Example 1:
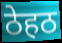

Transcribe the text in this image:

ठेहठ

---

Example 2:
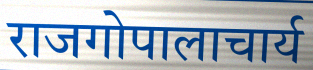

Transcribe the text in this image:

राजगोपालाचार्य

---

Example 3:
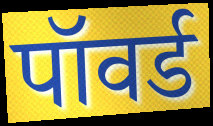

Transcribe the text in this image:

पॉवर्ड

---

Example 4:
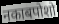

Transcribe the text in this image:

नकाबपोशो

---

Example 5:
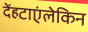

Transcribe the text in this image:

देंहटाएंलेकिन